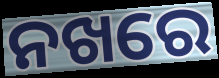
ନଖରେ